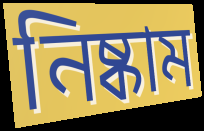
নিষ্কাম